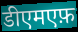
डीएमएफ़